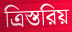
ত্রিস্তরিয়